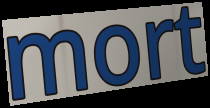
mort